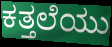
ಕತ್ತಲೆಯು